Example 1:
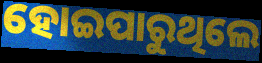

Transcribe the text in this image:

ହୋଇପାରୁଥିଲେ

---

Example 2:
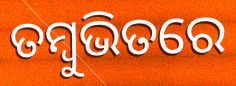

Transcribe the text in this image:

ତମ୍ବୁଭିତରେ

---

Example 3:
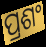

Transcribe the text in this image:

ପ୍ରଶଂ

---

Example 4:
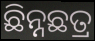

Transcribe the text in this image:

ଛିନ୍ନଛତ୍ର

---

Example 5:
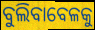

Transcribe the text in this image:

ବୁଲିବାବେଳକୁ